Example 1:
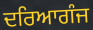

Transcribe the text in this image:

ਦਰਿਆਗੰਜ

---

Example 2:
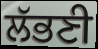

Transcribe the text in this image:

ਲੱਭਣੀ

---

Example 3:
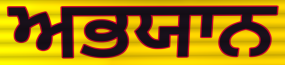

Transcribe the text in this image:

ਅਭਯਾਨ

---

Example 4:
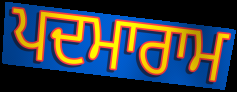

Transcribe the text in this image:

ਪਦਮਾਰਾਮ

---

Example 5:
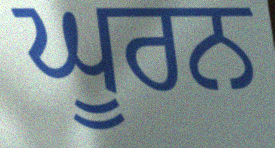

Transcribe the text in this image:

ਘੂਰਨ